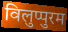
विलुप्पुरम